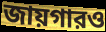
জায়গারও